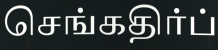
செங்கதிர்ப்